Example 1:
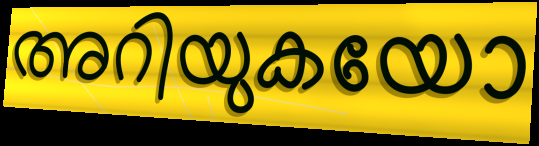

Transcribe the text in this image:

അറിയുകയോ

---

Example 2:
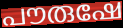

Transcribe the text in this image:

പൗരുഷേ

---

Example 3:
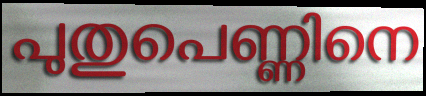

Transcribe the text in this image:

പുതുപെണ്ണിനെ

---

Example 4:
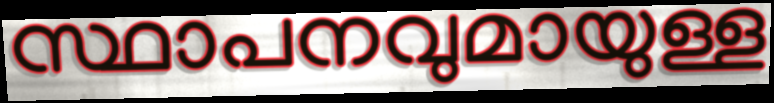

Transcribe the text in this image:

സ്ഥാപനവുമായുള്ള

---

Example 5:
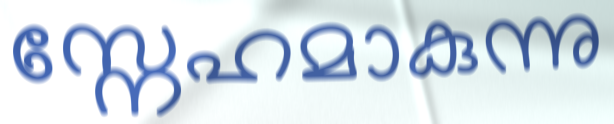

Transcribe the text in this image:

സ്നേഹമാകുന്നു